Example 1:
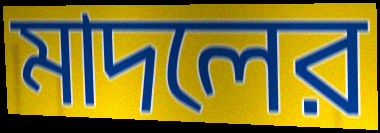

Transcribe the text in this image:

মাদলের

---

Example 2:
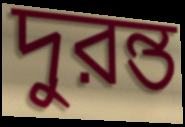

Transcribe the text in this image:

দুরন্ত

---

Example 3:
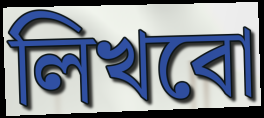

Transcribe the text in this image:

লিখবো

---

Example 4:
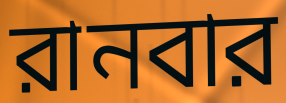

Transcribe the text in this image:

রানবার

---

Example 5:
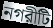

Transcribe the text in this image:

নগরীটি